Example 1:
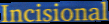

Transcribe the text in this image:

Incisional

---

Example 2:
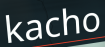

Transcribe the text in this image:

kacho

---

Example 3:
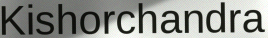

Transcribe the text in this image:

Kishorchandra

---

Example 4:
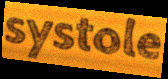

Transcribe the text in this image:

systole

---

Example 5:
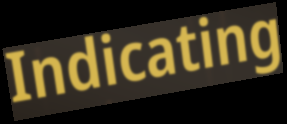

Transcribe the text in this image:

Indicating